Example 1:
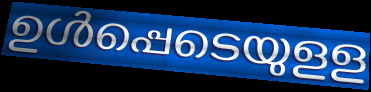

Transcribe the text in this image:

ഉൾപ്പെടെയുളള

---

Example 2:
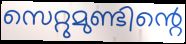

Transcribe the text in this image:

സെറ്റുമുണ്ടിന്റെ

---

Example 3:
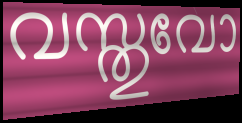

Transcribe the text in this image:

വസ്തുവോ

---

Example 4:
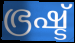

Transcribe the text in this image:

ഭ്രഷ്ട്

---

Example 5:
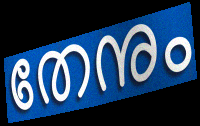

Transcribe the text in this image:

തേനും